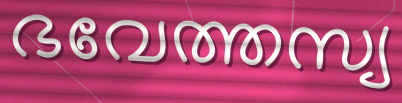
ഭവേത്തസ്യ